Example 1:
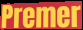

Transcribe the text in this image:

Premer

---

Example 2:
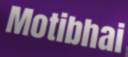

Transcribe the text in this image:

Motibhai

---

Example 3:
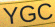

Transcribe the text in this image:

YGC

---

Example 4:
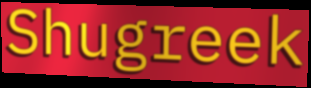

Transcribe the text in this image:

Shugreek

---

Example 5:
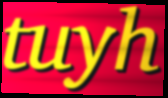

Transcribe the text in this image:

tuyh